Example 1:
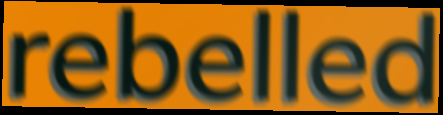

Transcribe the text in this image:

rebelled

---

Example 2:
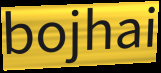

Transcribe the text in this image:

bojhai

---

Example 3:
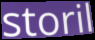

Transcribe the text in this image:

storil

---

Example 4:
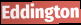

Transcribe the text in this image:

Eddington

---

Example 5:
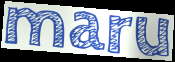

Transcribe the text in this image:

maru